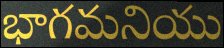
భాగమనియు